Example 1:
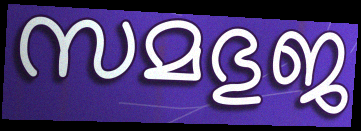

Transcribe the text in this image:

സമഭുജ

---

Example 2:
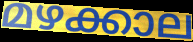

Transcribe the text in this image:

മഴക്കാല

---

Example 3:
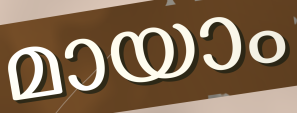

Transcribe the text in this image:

മായാം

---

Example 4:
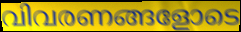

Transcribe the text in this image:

വിവരണങ്ങളോടെ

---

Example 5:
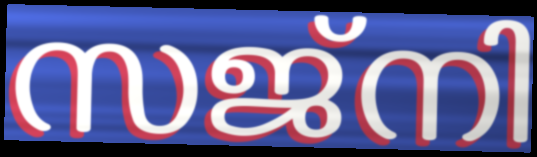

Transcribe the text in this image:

സജ്നി